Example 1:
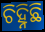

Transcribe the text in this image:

ଚିହ୍ନିଛି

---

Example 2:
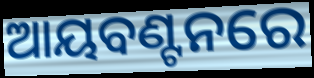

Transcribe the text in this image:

ଆୟବଣ୍ଟନରେ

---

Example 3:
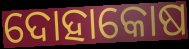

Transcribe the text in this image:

ଦୋହାକୋଷ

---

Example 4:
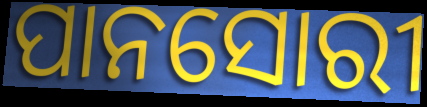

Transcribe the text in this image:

ପାନସୋରୀ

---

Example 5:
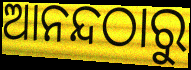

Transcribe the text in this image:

ଆନନ୍ଦଠାରୁ